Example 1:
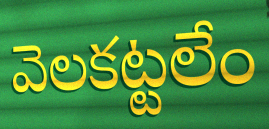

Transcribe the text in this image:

వెలకట్టలేం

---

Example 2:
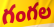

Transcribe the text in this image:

గంగల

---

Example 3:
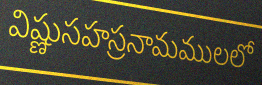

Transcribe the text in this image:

విష్ణుసహస్రనామములలో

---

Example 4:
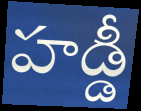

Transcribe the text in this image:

హడ్డీ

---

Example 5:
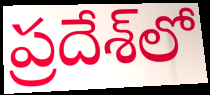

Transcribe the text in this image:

ప్రదేశ్‌లో